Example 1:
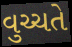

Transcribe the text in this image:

વુચ્ચતે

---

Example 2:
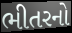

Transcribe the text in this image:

ભીતરનો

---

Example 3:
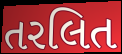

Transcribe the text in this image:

તરલિત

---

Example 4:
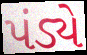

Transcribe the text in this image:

પંડ્યે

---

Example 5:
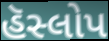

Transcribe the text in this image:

હૅસ્લોપ